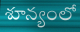
శూన్యంలో